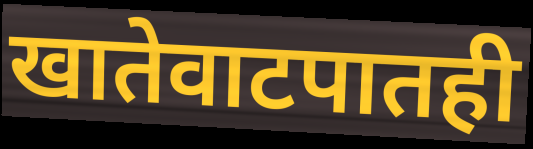
खातेवाटपातही